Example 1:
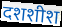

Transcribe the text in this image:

दशशीश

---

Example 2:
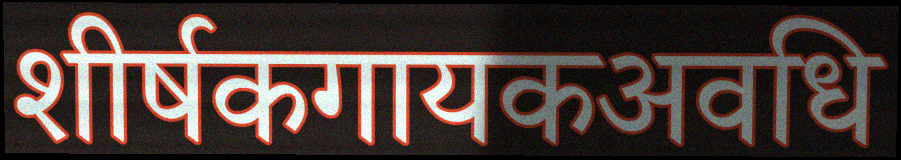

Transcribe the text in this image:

शीर्षकगायकअवधि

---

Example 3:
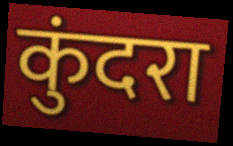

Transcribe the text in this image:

कुंदरा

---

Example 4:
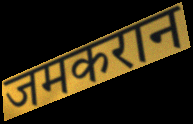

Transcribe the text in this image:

जमकरान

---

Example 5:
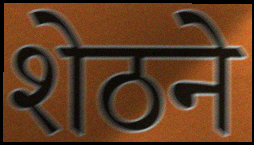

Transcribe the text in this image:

शेठने